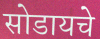
सोडायचे